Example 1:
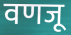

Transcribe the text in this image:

वणजू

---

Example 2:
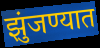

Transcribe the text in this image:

झुंजण्यात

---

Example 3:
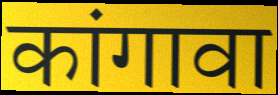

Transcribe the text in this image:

कांगावा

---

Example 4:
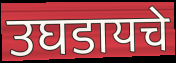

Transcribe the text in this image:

उघडायचे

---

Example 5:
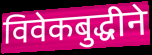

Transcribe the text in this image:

विवेकबुद्धीने